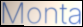
Monta